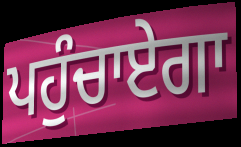
ਪਹੁੰਚਾਏਗਾ